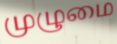
முழுமை